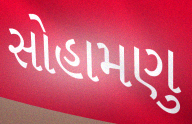
સોહામણુ